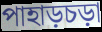
পাহাড়চড়া